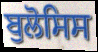
ਬੁਲੋਸਿਸ